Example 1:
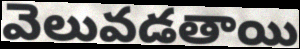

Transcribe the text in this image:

వెలువడతాయి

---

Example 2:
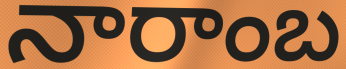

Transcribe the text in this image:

నారాంబ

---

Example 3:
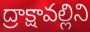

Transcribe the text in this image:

ద్రాక్షావల్లిని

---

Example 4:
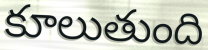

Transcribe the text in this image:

కూలుతుంది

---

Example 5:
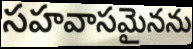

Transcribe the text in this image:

సహవాసమైనను